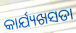
କାର୍ଯ୍ୟଖସଡା